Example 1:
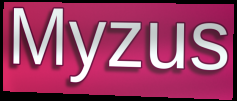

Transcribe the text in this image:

Myzus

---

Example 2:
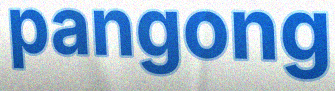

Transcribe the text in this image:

pangong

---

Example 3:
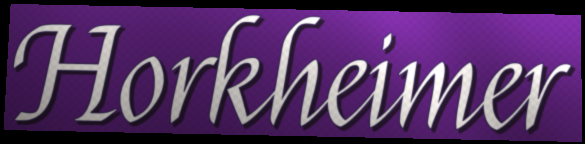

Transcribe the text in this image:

Horkheimer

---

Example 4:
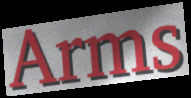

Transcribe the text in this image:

Arms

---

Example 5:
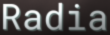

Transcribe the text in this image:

Radia